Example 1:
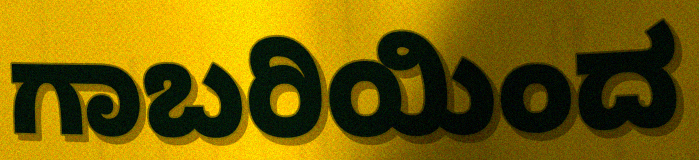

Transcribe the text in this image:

ಗಾಬರಿಯಿಂದ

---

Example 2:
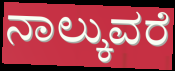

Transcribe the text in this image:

ನಾಲ್ಕುವರೆ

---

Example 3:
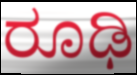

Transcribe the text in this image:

ರೂಢಿ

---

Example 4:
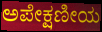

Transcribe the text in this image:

ಅಪೇಕ್ಷಣೀಯ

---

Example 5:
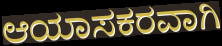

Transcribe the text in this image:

ಆಯಾಸಕರವಾಗಿ